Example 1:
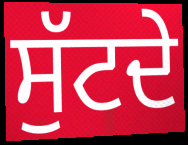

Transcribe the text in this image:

ਸੁੱਟਦੇ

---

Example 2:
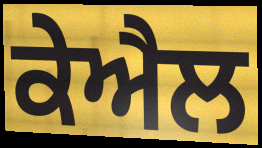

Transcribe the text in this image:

ਕੇਐਲ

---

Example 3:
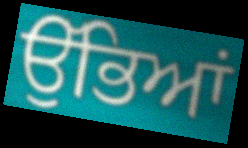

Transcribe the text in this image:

ਉੱਭਿਆਂ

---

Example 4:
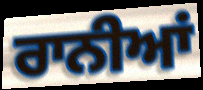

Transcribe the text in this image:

ਰਾਨੀਆਂ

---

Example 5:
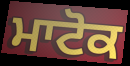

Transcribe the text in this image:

ਮਾਟੋਕ